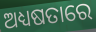
ଅଧ୍ୟଷତାରେ